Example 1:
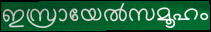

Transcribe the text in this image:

ഇസ്രായേൽസമൂഹം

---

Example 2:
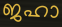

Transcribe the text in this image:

ജഹാ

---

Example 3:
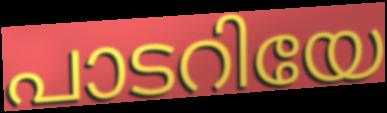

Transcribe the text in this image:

പാടറിയേ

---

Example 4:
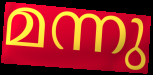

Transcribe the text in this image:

മന്നു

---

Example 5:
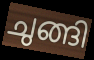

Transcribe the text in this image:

ചുങ്ങി